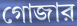
গোজার